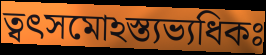
ত্বৎসমোঽস্ত্যভ্যধিকঃ